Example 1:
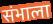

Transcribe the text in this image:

संभाला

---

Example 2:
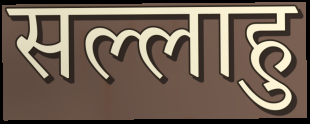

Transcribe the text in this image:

सल्लाहु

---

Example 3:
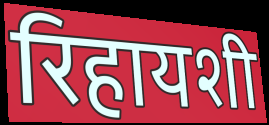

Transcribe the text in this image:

रिहायशी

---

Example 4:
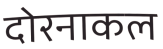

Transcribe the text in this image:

दोरनाकल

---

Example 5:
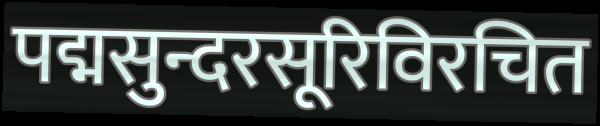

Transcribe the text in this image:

पद्मसुन्दरसूरिविरचित